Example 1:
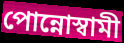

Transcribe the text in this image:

পোন্নোস্বামী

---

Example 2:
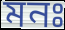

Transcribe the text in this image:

মনঃ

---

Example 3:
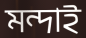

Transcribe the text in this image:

মন্দাই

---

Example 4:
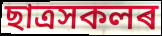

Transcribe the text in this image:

ছাত্ৰসকলৰ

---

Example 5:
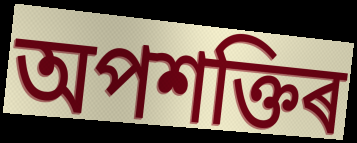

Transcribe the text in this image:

অপশক্তিৰ